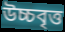
উচ্চবৃত্ত